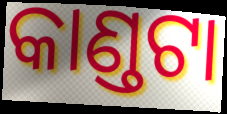
କାଣ୍ଡଟା